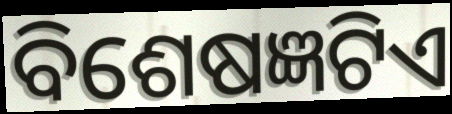
ବିଶେଷଜ୍ଞଟିଏ